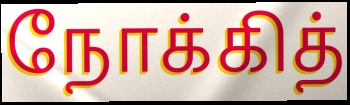
நோக்கித்